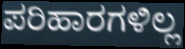
ಪರಿಹಾರಗಳಿಲ್ಲ